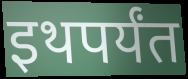
इथपर्यंत